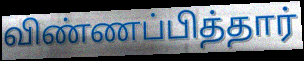
விண்ணப்பித்தார்